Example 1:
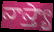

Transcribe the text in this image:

నాస్త్యా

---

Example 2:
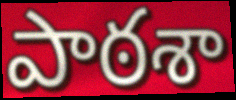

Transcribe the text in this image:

పాఠశా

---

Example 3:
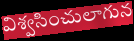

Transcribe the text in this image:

విశ్వసించులాగున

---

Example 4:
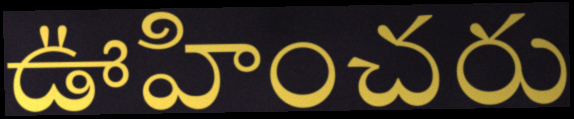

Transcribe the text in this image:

ఊహించరు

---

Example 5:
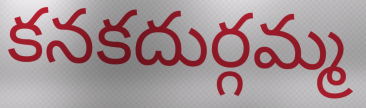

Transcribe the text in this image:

కనకదుర్గమ్మ